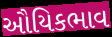
ઔયિકભાવ